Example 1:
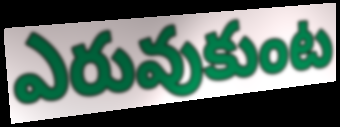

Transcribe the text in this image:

ఎరువుకుంట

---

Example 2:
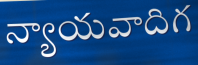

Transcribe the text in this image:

న్యాయవాదిగ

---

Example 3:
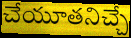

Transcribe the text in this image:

చేయూతనిచ్చే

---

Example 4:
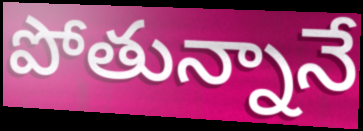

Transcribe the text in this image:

పోతున్నానే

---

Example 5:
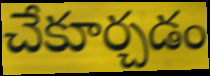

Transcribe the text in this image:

చేకూర్చడం